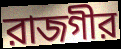
রাজগীর